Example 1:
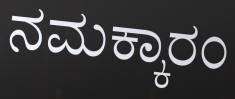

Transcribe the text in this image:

ನಮಕ್ಕಾರಂ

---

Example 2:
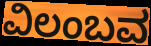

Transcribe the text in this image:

ವಿಲಂಬವ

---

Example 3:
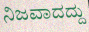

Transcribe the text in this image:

ನಿಜವಾದದ್ದು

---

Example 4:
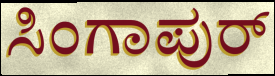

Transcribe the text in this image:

ಸಿಂಗಾಪುರ್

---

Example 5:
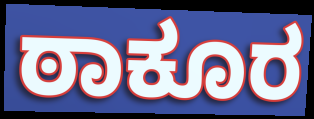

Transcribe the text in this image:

ಠಾಕೂರ